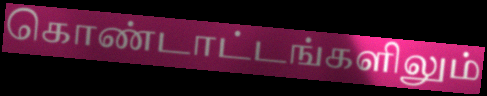
கொண்டாட்டங்களிலும்